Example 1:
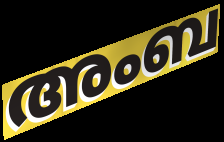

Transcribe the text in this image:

അംബ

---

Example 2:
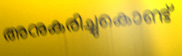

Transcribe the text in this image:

അനുകരിച്ചുകൊണ്ട്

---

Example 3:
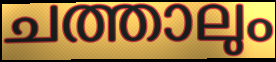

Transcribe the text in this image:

ചത്താലും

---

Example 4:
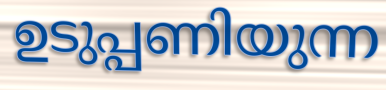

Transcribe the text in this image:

ഉടുപ്പണിയുന്ന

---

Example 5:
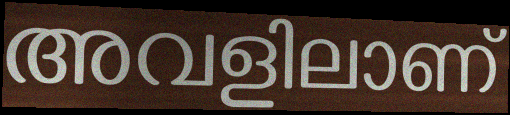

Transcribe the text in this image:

അവളിലാണ്